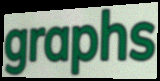
graphs